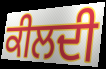
ਕੀਲਦੀ